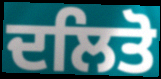
ਦਲਿਤੋ